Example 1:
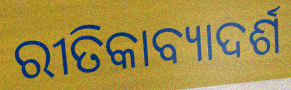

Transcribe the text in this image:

ରୀତିକାବ୍ୟାଦର୍ଶ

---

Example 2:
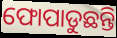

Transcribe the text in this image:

ଫୋପାଡୁଛନ୍ତି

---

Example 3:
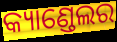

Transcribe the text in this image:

କ୍ୟାଣ୍ଡେଲର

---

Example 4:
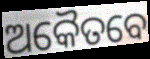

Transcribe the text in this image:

ଅକୈତବେ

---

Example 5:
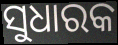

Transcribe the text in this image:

ସୁଧାରକ